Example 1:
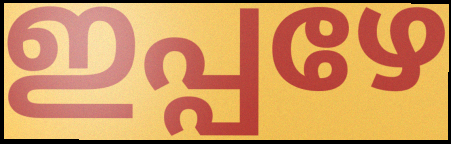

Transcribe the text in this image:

ഇപ്പഴേ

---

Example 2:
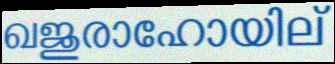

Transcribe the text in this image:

ഖജുരാഹോയില്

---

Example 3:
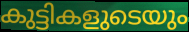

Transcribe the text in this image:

കുട്ടികളുടെയും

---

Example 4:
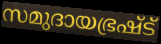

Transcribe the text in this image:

സമുദായഭ്രഷ്ട്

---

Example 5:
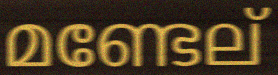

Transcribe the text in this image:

മണ്ടേല്